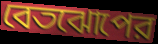
বেতঝোপের